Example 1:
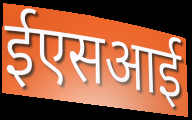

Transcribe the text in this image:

ईएसआई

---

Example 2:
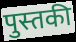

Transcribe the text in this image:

पुस्तकी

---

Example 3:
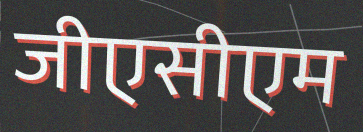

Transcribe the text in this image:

जीएसीएम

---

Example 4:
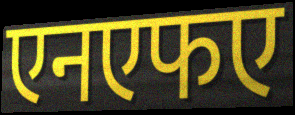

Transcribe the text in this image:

एनएफए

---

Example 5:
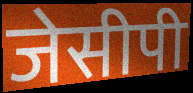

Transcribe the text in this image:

जेसीपी